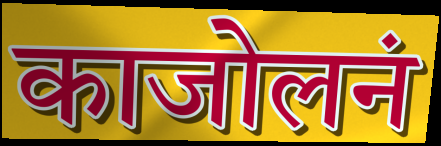
काजोलनं